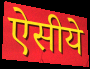
ऐसीये